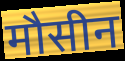
मौसीन